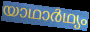
യാഥാർഥ്യം